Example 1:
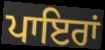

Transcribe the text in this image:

ਪਾਇਰਾਂ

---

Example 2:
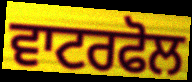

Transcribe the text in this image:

ਵਾਟਰਫੋਲ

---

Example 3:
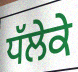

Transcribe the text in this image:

ਧੱਲੇਕੇ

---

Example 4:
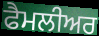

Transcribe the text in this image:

ਫੈਮਲੀਅਰ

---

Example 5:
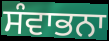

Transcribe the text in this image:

ਸੰਵਾਭਨਾ